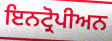
ਇਨਟ੍ਰੋਪੀਅਨ